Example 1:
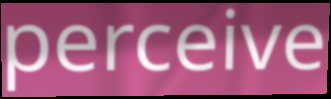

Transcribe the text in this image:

perceive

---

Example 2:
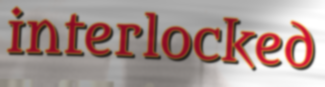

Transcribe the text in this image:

interlocked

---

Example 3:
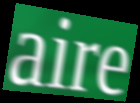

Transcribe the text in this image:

aire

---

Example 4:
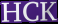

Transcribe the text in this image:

HCK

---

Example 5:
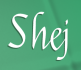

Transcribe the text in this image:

Shej